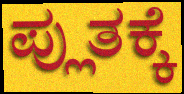
ಪ್ಲುತಕ್ಕೆ